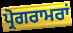
ਪ੍ਰੋਗਰਾਮਰਾਂ